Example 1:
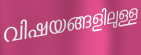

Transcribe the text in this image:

വിഷയങ്ങളിലുള്ള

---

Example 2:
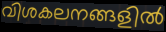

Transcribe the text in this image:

വിശകലനങ്ങളിൽ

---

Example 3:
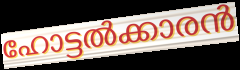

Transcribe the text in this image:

ഹോട്ടൽക്കാരൻ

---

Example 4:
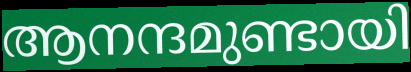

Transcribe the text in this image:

ആനന്ദമുണ്ടായി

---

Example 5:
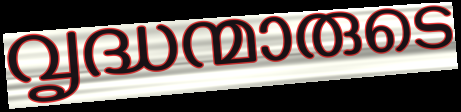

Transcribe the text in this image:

വൃദ്ധന്മാരുടെ